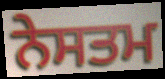
ਨੇਸਤਮ